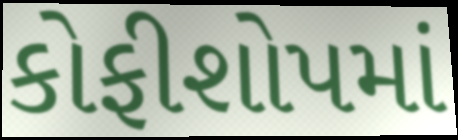
કોફીશોપમાં